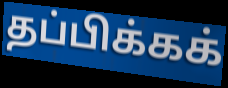
தப்பிக்கக்